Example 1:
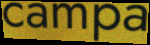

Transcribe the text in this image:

campa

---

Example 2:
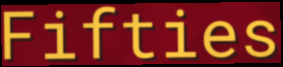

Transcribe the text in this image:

Fifties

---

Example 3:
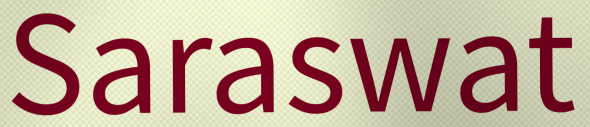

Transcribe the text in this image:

Saraswat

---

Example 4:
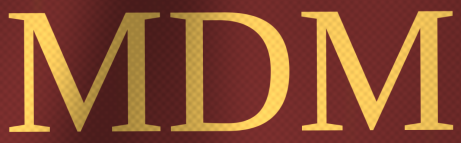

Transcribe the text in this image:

MDM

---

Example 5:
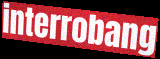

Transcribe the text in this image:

interrobang